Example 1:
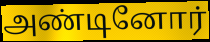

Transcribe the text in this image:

அண்டினோர்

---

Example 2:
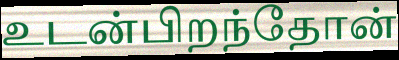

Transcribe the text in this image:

உடன்பிறந்தோன்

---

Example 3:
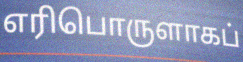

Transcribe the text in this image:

எரிபொருளாகப்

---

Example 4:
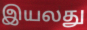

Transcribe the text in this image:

இயலது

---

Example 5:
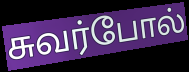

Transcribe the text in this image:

சுவர்போல்